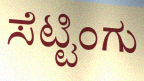
ಸೆಟ್ಟಿಂಗು